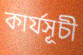
কাৰ্যসূচী